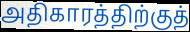
அதிகாரத்திற்குத்